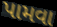
પામવા